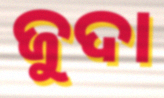
ଜୁଦା